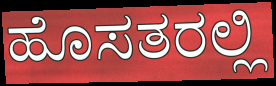
ಹೊಸತರಲ್ಲಿ